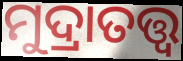
ମୁଦ୍ରାତତ୍ତ୍ବ